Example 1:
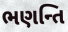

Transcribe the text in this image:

ભણન્તિ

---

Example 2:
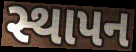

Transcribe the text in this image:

સ્થાપન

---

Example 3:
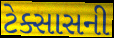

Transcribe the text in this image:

ટેક્સાસની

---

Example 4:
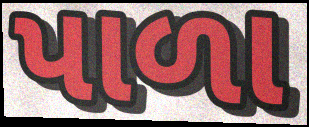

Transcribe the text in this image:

પાળા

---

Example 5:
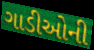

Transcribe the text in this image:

ગાડીઓની